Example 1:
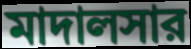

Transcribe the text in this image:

মাদালসার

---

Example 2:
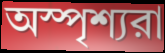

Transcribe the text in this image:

অস্পৃশ্যরা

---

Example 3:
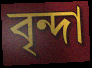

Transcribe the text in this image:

বৃন্দা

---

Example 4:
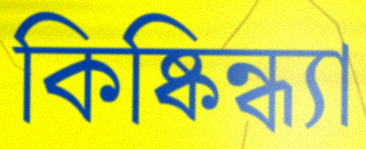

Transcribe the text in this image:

কিষ্কিন্ধ্যা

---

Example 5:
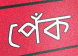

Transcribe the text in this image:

পেঁক